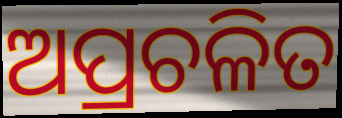
ଅପ୍ରଚଳିତ